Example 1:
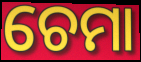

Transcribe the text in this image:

ଚେମା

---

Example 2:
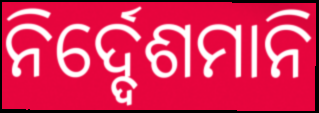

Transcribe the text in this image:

ନିର୍ଦ୍ଦେଶମାନି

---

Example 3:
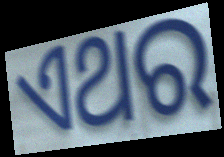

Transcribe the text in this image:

ଏଥର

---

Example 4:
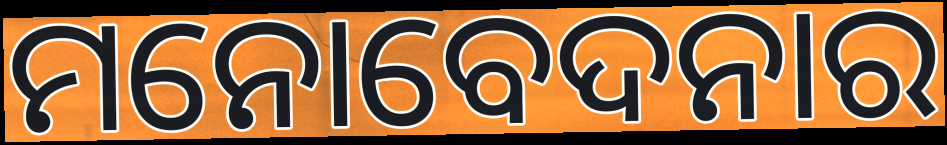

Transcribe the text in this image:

ମନୋବେଦନାର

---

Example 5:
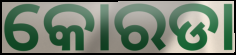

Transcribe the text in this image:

କୋରଡା